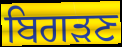
ਬਿਗੜਣ